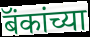
बॅंकांच्या